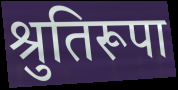
श्रुतिरूपा